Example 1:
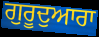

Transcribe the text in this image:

ਗੁਰੂਦੁਆਰਾ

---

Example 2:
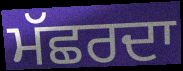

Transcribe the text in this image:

ਮੱਛਰਦਾ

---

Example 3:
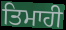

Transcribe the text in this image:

ਤਿਮਾਹੀ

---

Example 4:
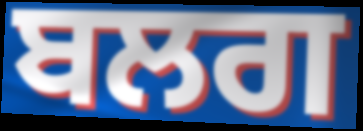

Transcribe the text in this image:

ਬਲਗ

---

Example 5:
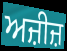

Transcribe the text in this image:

ਅਜ਼ੀਜ਼